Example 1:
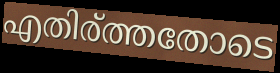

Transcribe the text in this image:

എതിര്ത്തതോടെ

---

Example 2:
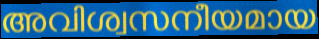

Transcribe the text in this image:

അവിശ്വസനീയമായ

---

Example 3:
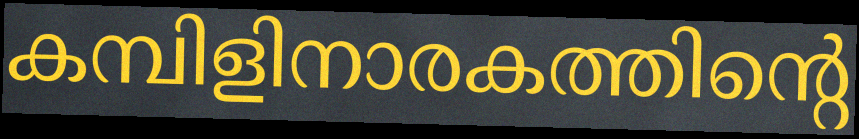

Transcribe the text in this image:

കമ്പിളിനാരകത്തിന്റെ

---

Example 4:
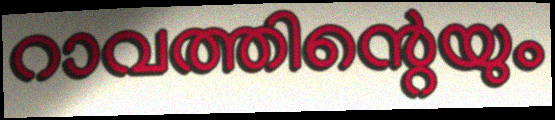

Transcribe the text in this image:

റാവത്തിന്റെയും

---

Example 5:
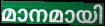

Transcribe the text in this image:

മാനമായി